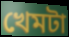
খেমটা